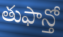
తుఫాన్తో